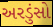
અરડુંસો